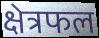
क्षेत्रफल